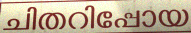
ചിതറിപ്പോയ